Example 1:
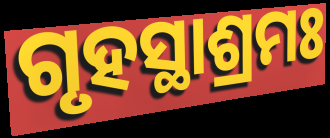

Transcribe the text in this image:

ଗୃହସ୍ଥାଶ୍ରମଃ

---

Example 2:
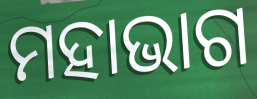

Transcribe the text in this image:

ମହାଭାଗ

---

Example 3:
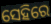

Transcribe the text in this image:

ସେହିରେ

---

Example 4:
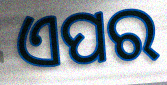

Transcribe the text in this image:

ଏପର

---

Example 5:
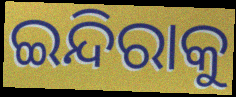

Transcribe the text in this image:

ଇନ୍ଦିରାକୁ